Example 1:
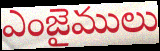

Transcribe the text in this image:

ఎంజైములు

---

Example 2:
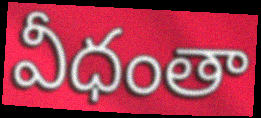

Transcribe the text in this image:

వీధంతా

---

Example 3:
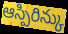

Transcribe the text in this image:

ఆస్పిరిన్కు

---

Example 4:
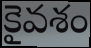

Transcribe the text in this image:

కైవశం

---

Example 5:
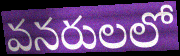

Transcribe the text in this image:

వనరులలో